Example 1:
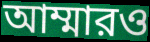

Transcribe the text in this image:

আম্মারও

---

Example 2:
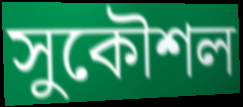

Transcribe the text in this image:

সুকৌশল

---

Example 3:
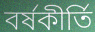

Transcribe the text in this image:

বর্ষকীর্তি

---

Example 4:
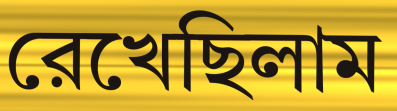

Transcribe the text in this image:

রেখেছিলাম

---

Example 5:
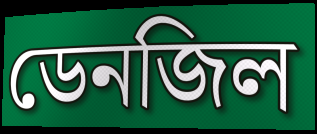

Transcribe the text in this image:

ডেনজিল